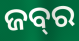
ଜବ୍‍ର